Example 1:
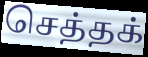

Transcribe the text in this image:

செத்தக்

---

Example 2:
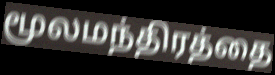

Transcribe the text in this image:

மூலமந்திரத்தை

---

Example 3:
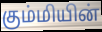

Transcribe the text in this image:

கும்மியின்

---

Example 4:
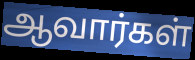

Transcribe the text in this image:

ஆவார்கள்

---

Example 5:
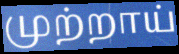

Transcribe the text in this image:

முற்றாய்